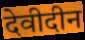
देवीदीन